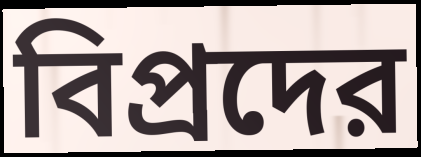
বিপ্রদের